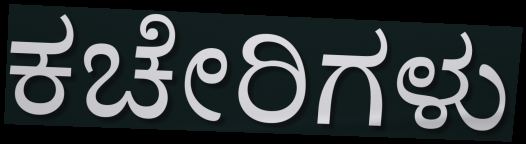
ಕಚೇರಿಗಳು